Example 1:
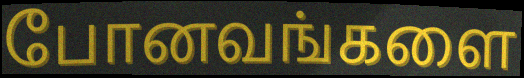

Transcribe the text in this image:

போனவங்களை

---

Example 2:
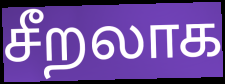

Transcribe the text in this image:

சீறலாக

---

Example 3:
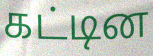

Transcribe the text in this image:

கட்டின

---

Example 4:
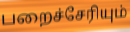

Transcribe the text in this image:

பறைச்சேரியும்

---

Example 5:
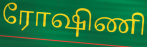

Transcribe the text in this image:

ரோஷிணி